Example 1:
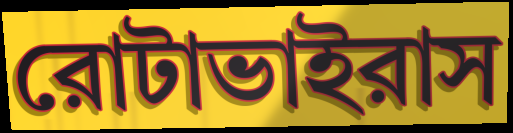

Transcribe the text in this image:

রোটাভাইরাস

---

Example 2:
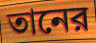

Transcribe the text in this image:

তানের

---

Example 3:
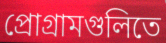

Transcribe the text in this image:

প্রোগ্রামগুলিতে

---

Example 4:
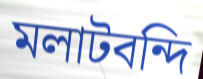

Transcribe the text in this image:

মলাটবন্দি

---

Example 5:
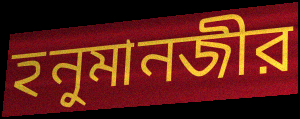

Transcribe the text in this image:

হনুমানজীর